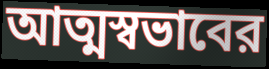
আত্মস্বভাবের